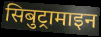
सिबुट्रामाइन